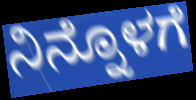
ನಿನ್ನೊಳಗೆ